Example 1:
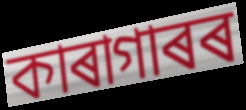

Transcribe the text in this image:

কাৰাগাৰৰ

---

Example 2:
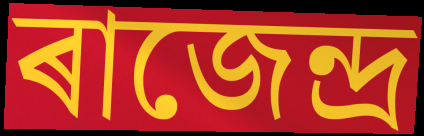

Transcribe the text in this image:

ৰাজেন্দ্ৰ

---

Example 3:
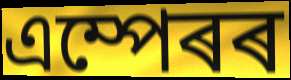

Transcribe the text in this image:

এম্পেৰৰ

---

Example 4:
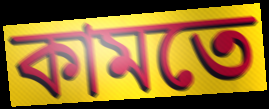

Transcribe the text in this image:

কামতে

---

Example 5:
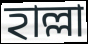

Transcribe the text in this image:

হাল্লা